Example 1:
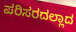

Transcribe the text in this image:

ಪರಿಸರದಲ್ಲಾದ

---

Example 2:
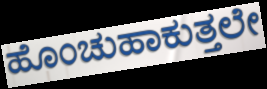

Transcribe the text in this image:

ಹೊಂಚುಹಾಕುತ್ತಲೇ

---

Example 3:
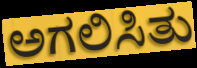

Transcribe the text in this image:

ಅಗಲಿಸಿತು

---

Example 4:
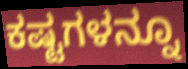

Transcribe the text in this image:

ಕಷ್ಟಗಳನ್ನೂ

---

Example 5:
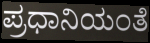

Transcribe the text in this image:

ಪ್ರಧಾನಿಯಂತೆ